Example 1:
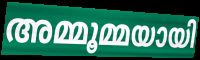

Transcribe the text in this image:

അമ്മൂമ്മയായി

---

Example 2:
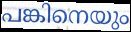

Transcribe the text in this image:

പങ്കിനെയും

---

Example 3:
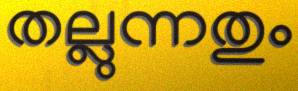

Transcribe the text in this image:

തല്ലുന്നതും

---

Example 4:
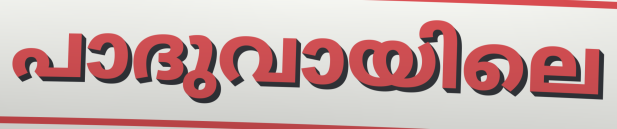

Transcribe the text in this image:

പാദുവായിലെ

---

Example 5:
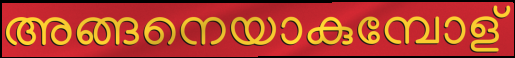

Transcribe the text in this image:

അങ്ങനെയാകുമ്പോള്